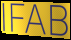
IFAB